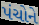
પંચોને